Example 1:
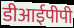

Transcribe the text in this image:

डीआईपीपी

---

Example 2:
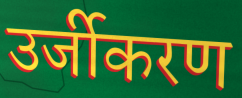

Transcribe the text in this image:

उर्जीकरण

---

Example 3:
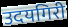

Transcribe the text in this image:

उदयगिरी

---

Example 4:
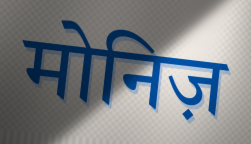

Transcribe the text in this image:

मोनिज़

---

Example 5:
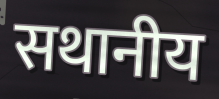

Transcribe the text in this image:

सथानीय